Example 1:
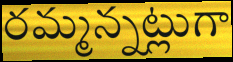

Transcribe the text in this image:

రమ్మన్నట్లుగా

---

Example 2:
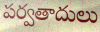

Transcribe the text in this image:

పర్వతాదులు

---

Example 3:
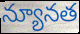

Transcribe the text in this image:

న్యూనత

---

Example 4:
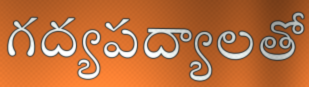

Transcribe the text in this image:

గద్యపద్యాలతో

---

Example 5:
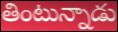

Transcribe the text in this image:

తింటున్నాడు